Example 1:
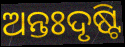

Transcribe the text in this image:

ଅନ୍ତଃଦୃଷ୍ଟି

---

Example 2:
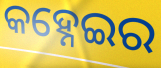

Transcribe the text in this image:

କହ୍ନେଇର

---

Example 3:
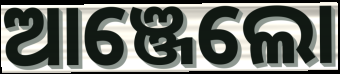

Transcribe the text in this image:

ଆଞ୍ଜେଲୋ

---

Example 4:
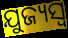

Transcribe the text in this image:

ଯୁଜ୍ୟସ୍ୱ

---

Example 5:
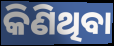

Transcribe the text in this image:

କିଣିଥିବା